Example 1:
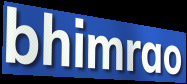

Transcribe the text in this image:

bhimrao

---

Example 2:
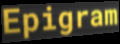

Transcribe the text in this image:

Epigram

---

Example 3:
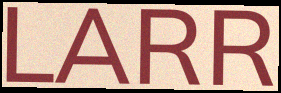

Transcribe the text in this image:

LARR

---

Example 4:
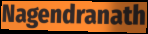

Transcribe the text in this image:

Nagendranath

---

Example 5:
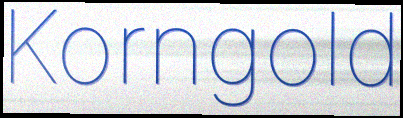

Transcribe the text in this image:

Korngold